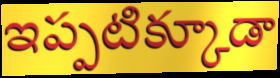
ఇప్పటిక్కూడా